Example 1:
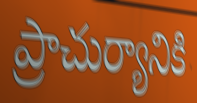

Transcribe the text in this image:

ప్రాచుర్యానికి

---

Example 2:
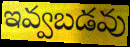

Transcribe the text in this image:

ఇవ్వబడవు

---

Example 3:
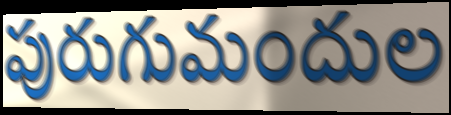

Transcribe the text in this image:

పురుగుమందుల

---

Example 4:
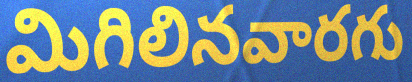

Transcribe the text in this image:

మిగిలినవారగు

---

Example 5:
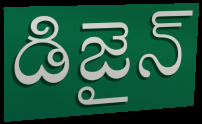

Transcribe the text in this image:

డిజైన్